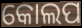
କୋଲପ